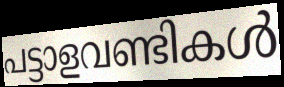
പട്ടാളവണ്ടികൾ